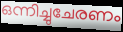
ഒന്നിച്ചുചേരണം